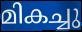
മികച്ചു